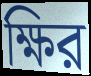
ক্ষির